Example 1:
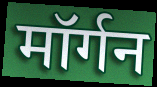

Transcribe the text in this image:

मॉर्गन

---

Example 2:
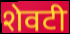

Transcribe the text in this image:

शेवटी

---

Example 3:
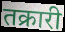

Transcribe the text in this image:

तक्रारी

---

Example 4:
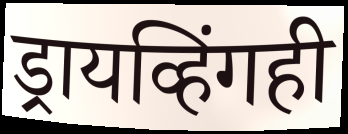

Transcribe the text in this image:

ड्रायव्हिंगही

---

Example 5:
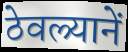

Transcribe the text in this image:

ठेवल्यानें